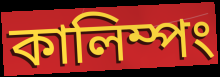
কালিম্পং